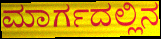
ಮಾರ್ಗದಲ್ಲಿನ